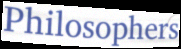
Philosophers